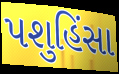
પશુહિંસા